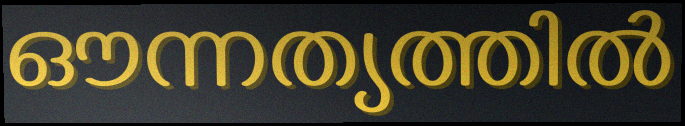
ഔന്നത്യത്തിൽ